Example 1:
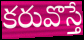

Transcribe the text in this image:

కరువొస్తే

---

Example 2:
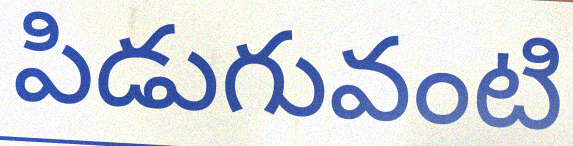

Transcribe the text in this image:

పిడుగువంటి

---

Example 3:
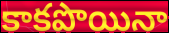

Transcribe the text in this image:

కాకపొయినా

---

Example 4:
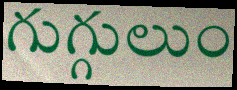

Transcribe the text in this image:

గుగ్గులుం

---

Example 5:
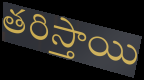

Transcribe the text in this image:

తరిస్తాయి